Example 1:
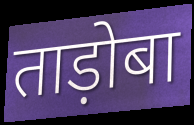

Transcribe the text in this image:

ताड़ोबा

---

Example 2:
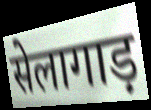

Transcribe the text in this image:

सेलागाड़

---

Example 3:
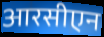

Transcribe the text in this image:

आरसीएन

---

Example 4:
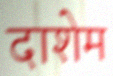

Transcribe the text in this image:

दाशेम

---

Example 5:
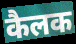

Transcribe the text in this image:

कैलक